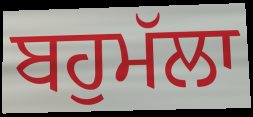
ਬਹੁਮੱਲਾ